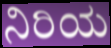
ನಿರಿಯ